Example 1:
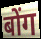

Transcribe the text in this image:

बोंग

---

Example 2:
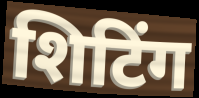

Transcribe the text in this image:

शिटिंग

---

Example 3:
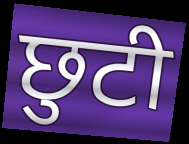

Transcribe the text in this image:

छुटी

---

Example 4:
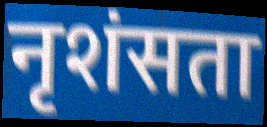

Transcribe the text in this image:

नृशंसता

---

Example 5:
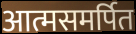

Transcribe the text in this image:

आत्मसमर्पित